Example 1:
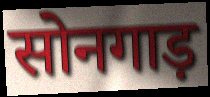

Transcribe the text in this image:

सोनगाड़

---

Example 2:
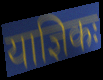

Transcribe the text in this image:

याज्ञिकः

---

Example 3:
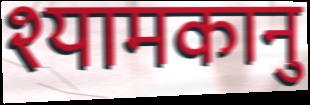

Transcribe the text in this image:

श्यामकानु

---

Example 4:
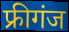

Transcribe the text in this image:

फ्रीगंज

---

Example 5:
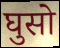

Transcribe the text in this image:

घुसो